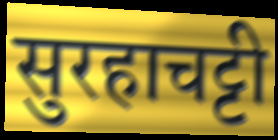
सुरहाचट्टी